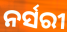
ନର୍ସରୀ